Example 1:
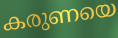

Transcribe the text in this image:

കരുണയെ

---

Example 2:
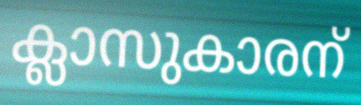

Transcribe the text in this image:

ക്ലാസുകാരന്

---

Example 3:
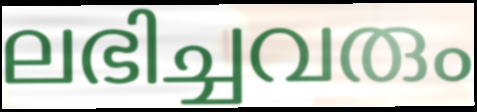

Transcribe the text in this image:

ലഭിച്ചവരും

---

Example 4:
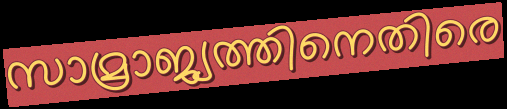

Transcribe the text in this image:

സാമ്രാജ്യത്തിനെതിരെ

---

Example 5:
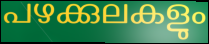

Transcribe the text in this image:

പഴക്കുലകളും